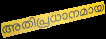
അതിപ്രധാനമായ